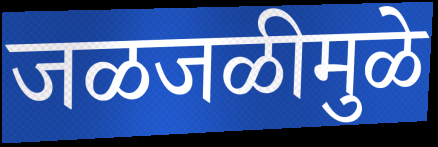
जळजळीमुळे